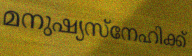
മനുഷ്യസ്നേഹിക്ക്